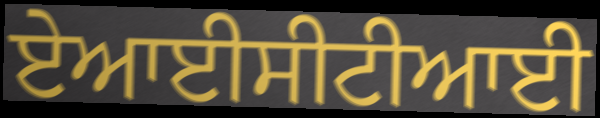
ਏਆਈਸੀਟੀਆਈ